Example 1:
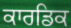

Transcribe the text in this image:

ਕਾਰਡਿਕ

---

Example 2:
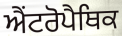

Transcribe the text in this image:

ਐਂਟਰੋਪੈਥਿਕ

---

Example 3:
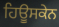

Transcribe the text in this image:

ਹਿਊਸਕੇਨ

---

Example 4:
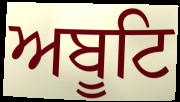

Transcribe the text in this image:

ਅਬੂਟਿ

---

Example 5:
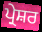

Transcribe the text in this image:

ਪ੍ਰੇਸ਼ਰ